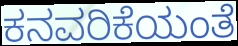
ಕನವರಿಕೆಯಂತೆ